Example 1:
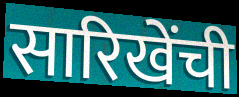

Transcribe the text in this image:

सारिखेंची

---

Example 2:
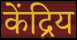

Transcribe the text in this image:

केंद्रिय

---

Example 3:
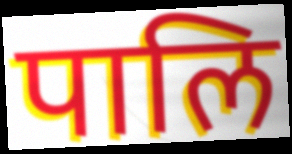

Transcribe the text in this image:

पालि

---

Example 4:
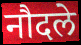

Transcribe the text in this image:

नौदले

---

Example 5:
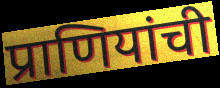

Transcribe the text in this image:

प्राणियांची